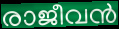
രാജീവൻ